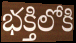
భక్తిలోకి